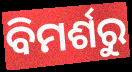
ବିମର୍ଶରୁ